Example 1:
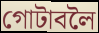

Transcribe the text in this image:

গোটাবলৈ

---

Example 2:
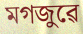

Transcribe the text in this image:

মগজুৱে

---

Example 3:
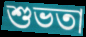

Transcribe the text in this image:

শুভতা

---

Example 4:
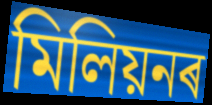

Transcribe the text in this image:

মিলিয়নৰ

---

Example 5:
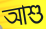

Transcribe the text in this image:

আশু